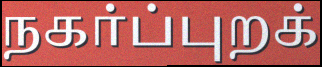
நகர்ப்புறக்